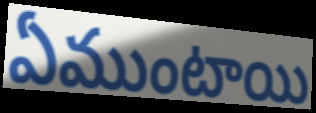
ఏముంటాయి